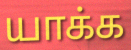
யாக்க